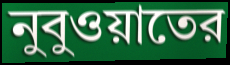
নুবুওয়াতের